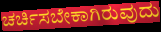
ಚರ್ಚಿಸಬೇಕಾಗಿರುವುದು